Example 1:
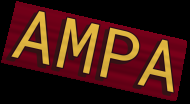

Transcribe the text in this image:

AMPA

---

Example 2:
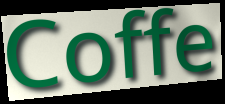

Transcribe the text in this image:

Coffe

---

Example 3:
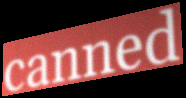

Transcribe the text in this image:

canned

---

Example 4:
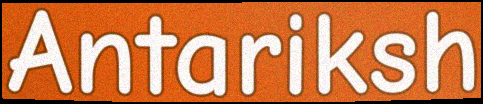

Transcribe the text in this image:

Antariksh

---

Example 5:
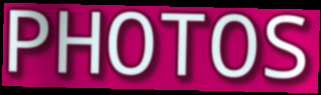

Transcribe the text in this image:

PHOTOS